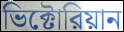
ভিক্টোরিয়ান